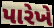
પારેખે